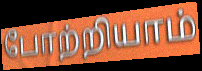
போற்றியாம்